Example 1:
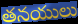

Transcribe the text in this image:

తనయులు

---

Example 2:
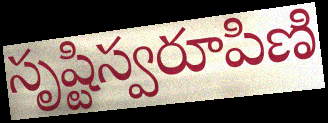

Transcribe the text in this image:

సృష్టిస్వరూపిణి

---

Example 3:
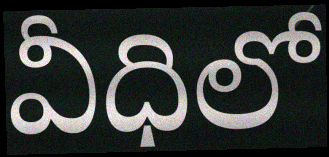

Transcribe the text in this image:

వీధిలో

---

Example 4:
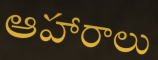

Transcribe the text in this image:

ఆహారాలు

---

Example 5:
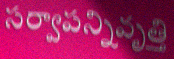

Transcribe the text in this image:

సర్వాపన్నివృత్తి